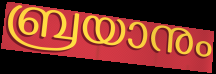
ബ്രയാനും